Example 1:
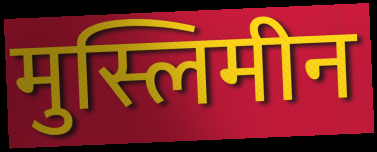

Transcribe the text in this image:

मुस्लिमीन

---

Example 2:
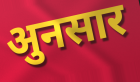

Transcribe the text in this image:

अुनसार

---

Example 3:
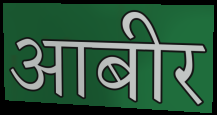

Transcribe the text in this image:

आबीर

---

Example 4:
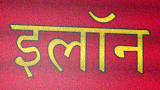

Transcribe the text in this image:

इलॉन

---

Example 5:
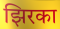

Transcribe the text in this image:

झिरका